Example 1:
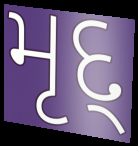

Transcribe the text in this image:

મૃદ્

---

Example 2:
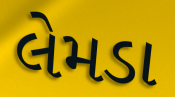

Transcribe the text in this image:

લેમડા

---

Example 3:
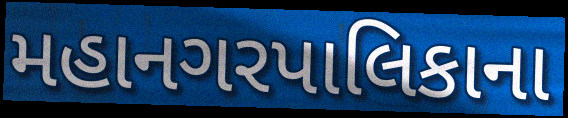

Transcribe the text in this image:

મહાનગરપાલિકાના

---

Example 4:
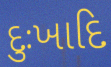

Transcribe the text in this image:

દુઃખાદિ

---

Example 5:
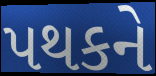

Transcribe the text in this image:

પથકને